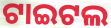
ଟାଇଟଲ